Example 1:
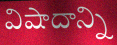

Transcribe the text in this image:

విషాదాన్ని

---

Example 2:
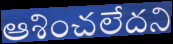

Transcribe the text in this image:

ఆశించలేదని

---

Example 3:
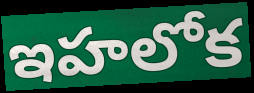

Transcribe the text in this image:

ఇహలోక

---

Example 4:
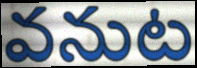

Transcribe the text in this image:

వనుట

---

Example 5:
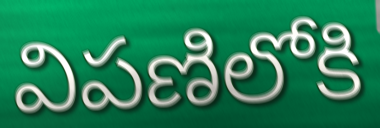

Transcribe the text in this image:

విపణిలోకి